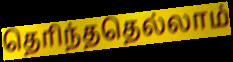
தெரிந்ததெல்லாம்